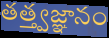
తత్త్వజ్ఞానం